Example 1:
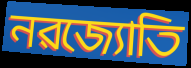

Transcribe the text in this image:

নৱজ্যোতি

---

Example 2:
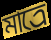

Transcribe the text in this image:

মাত্ৰে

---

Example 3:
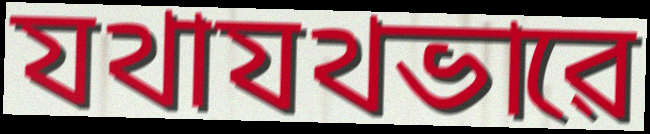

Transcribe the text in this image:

যথাযথভাৱে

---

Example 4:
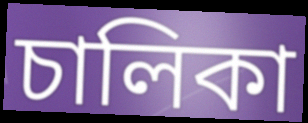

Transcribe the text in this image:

চালিকা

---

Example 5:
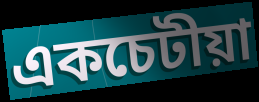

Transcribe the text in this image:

একচেটীয়া